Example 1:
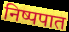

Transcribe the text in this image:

निष्पपात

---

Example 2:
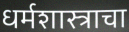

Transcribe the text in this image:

धर्मशास्त्राचा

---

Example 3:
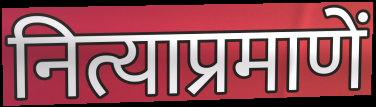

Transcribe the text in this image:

नित्याप्रमाणें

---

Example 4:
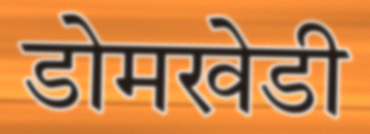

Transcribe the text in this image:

डोमखेडी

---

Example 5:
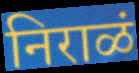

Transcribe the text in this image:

निराळं